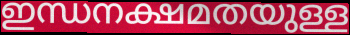
ഇന്ധനക്ഷമതയുള്ള